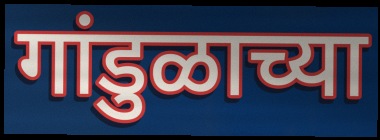
गांडुळाच्या